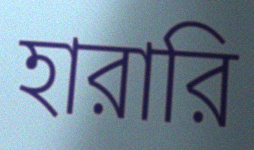
হারারি